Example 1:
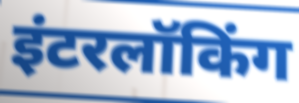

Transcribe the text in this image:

इंटरलॉकिंग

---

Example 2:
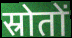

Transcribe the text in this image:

स्रोतों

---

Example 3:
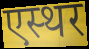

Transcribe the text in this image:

एस्थर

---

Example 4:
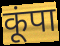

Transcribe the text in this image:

कूंपा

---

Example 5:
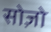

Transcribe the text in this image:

सोज़ो